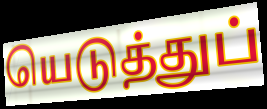
யெடுத்துப்